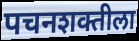
पचनशक्तीला